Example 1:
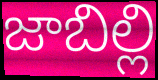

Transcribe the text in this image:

జాబిల్లి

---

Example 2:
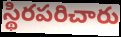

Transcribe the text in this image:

స్థిరపరిచారు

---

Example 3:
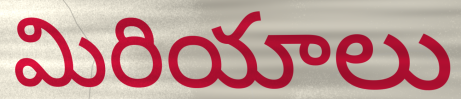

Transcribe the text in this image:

మిరియాలు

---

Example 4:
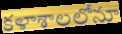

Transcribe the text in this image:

కళాశాలలోనూ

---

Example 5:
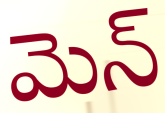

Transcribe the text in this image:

మెన్